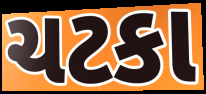
ચટકા